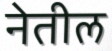
नेतील